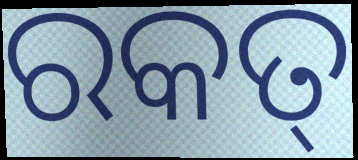
ରକତ୍